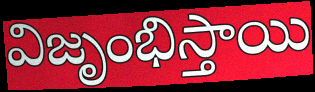
విజృంభిస్తాయి